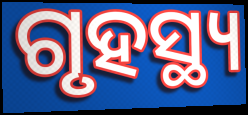
ଗୃହସ୍ଥ୍ୟ